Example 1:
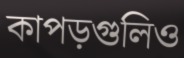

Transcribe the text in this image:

কাপড়গুলিও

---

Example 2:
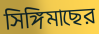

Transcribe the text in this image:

সিঙ্গিমাছের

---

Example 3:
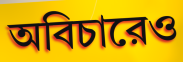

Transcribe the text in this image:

অবিচারেও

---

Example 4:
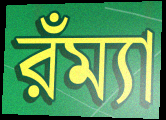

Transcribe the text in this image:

রঁম্যা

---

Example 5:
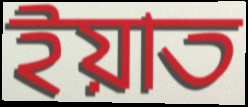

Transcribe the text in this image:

ইয়াত